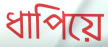
ধাপিয়ে